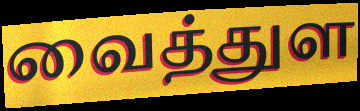
வைத்துள